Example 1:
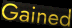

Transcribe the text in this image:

Gained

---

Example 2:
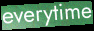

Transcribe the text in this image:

everytime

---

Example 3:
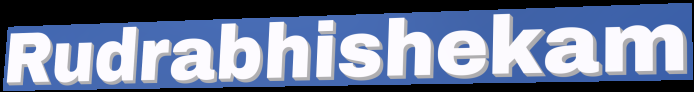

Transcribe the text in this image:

Rudrabhishekam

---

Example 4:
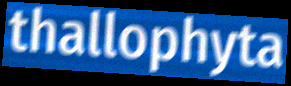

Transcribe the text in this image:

thallophyta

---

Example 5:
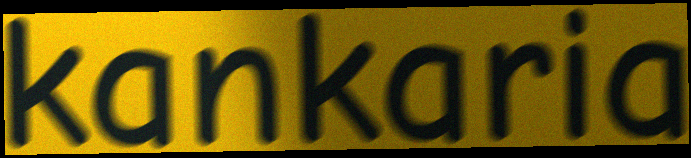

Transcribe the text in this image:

kankaria